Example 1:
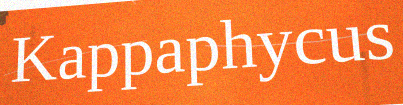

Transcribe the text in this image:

Kappaphycus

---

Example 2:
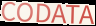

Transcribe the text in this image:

CODATA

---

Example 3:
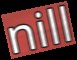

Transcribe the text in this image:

nill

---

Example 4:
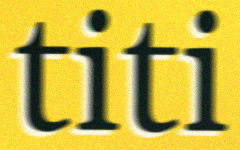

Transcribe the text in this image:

titi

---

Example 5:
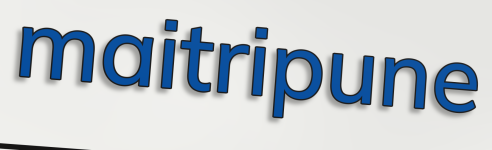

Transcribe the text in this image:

maitripune